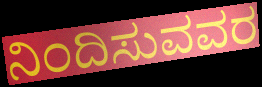
ನಿಂದಿಸುವವರ